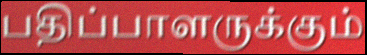
பதிப்பாளருக்கும்